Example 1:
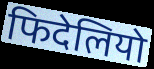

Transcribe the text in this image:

फिदेलियो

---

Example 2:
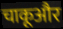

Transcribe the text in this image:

चाकूऔर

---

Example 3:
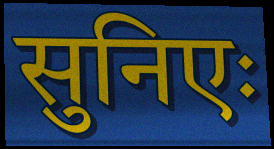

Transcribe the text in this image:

सुनिएः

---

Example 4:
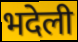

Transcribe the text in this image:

भदेली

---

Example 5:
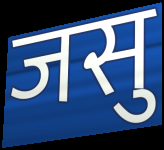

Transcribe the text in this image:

जसु